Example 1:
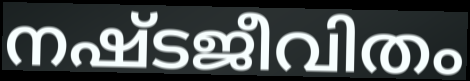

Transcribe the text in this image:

നഷ്ടജീവിതം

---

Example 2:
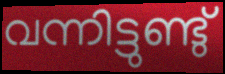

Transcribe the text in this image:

വന്നിട്ടുണ്ടു്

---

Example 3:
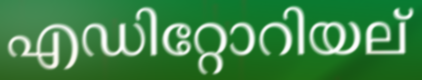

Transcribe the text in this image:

എഡിറ്റോറിയല്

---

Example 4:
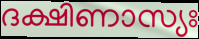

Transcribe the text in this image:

ദക്ഷിണാസ്യഃ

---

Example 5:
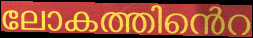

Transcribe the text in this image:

ലോകത്തിൻെറ